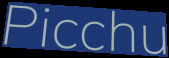
Picchu